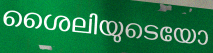
ശൈലിയുടെയോ